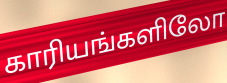
காரியங்களிலோ